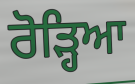
ਰੋੜ੍ਹਿਆ